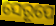
ସେରୂପେ